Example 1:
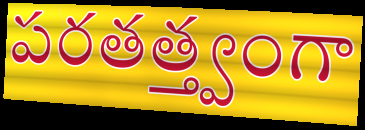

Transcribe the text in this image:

పరతత్త్వంగా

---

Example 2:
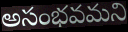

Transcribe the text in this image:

అసంభవమని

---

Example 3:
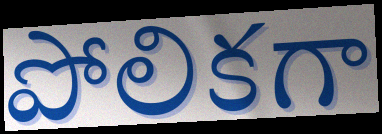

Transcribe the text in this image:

పోలికగా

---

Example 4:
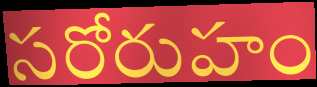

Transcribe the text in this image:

సరోరుహం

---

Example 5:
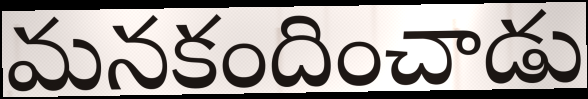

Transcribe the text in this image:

మనకందించాడు